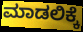
ಮಾಡಲಿಕ್ಕೆ